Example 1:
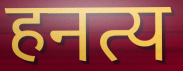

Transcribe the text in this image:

हनत्य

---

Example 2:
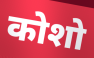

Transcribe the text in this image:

कोशो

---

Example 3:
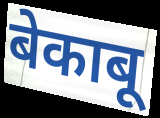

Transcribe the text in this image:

बेकाबू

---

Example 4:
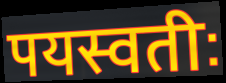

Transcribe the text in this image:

पयस्वतीः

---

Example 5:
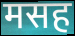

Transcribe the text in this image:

मसह